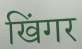
खिंगर